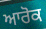
ਆਰੋਕ